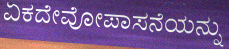
ಏಕದೇವೋಪಾಸನೆಯನ್ನು